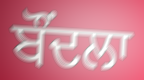
ਬੌਂਦਲਾ